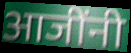
आजींनी